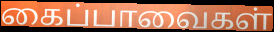
கைப்பாவைகள்